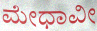
ಮೇಧಾವೀ